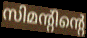
സിമന്റിന്റെ